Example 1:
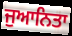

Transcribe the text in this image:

ਜੁਆਨਿਤਾ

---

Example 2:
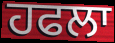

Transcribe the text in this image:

ਹਫਲਾ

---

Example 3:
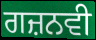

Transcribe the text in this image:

ਗਜ਼ਨਵੀ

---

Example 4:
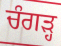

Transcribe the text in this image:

ਚੰਗੜ੍ਹ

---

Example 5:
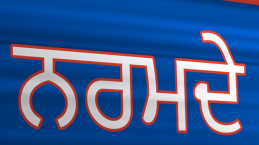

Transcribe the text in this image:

ਨਰਮਦੇ